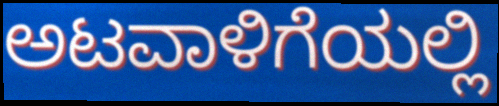
ಅಟವಾಳಿಗೆಯಲ್ಲಿ